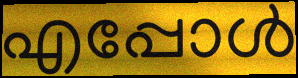
എപ്പോൾ